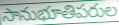
సానుభూతిపరుల